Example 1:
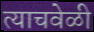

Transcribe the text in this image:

त्याचवेळी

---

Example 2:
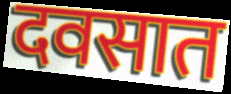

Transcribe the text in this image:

दवसात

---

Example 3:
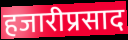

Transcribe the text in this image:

हजारीप्रसाद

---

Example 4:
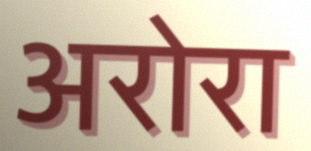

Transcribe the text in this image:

अरोरा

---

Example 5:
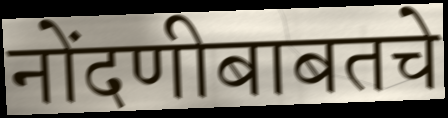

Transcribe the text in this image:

नोंदणीबाबतचे